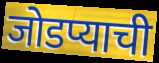
जोडप्याची